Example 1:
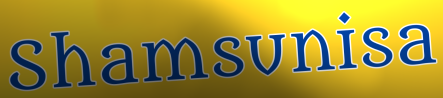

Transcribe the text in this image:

Shamsunisa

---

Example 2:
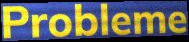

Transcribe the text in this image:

Probleme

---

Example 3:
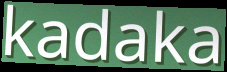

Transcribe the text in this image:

kadaka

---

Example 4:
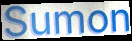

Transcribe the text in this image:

Sumon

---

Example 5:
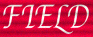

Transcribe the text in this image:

FIELD